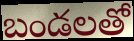
బండలతో